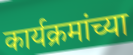
कार्यक्रमांच्या